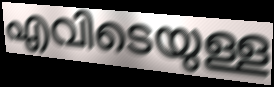
എവിടെയുള്ള